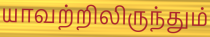
யாவற்றிலிருந்தும்